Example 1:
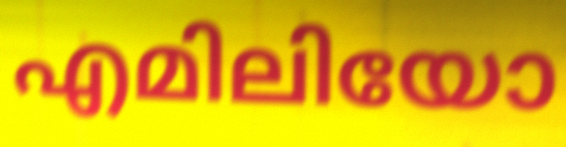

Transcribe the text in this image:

എമിലിയോ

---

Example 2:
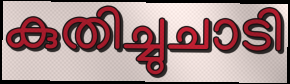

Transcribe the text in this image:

കുതിച്ചുചാടി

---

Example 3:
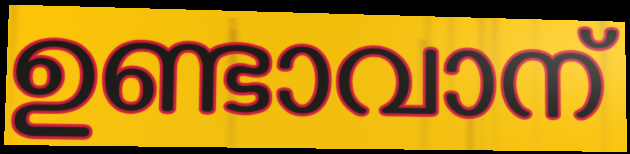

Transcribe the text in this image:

ഉണ്ടാവാന്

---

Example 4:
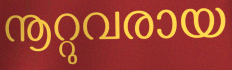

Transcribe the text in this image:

നൂറ്റുവരായ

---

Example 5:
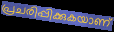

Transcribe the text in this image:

പ്രചരിപ്പിക്കുകയാണ്